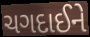
ચગદાઈને